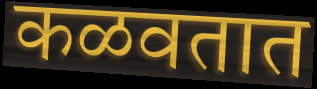
कळवतात